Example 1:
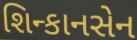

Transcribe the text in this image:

શિન્કાનસેન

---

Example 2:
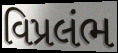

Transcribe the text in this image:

વિપ્રલંભ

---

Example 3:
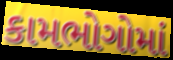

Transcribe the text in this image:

કામભોગોમાં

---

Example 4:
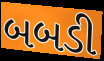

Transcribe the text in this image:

બબડી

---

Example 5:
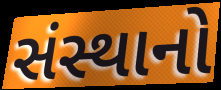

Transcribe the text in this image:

સંસ્થાનો